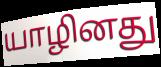
யாழினது